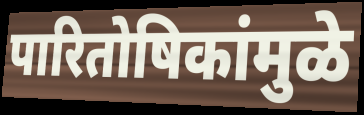
पारितोषिकांमुळे